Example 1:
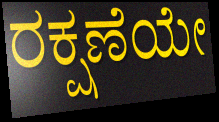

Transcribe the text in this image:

ರಕ್ಷಣೆಯೇ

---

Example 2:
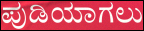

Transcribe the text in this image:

ಪುಡಿಯಾಗಲು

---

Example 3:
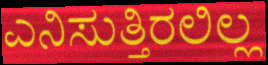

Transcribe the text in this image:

ಎನಿಸುತ್ತಿರಲಿಲ್ಲ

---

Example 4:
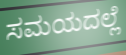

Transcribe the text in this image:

ಸಮಯದಲ್ಲೆ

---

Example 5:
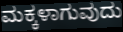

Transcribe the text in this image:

ಮಕ್ಕಳಾಗುವುದು